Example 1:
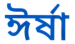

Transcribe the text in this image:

ঈর্ষা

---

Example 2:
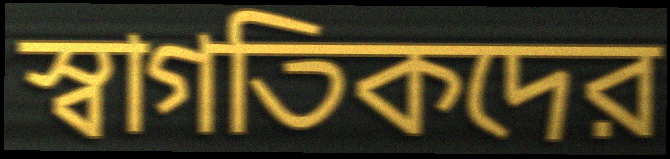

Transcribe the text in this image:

স্বাগতিকদের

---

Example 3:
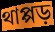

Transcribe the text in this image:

থাপ্পড়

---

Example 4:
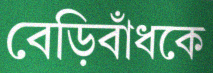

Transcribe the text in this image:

বেড়িবাঁধকে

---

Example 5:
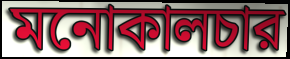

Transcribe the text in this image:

মনোকালচার